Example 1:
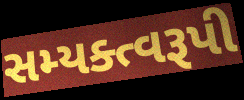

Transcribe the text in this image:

સમ્યક્ત્વરૂપી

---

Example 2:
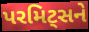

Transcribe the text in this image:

પરમિટ્સને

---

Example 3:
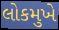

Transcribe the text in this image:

લોકમુખે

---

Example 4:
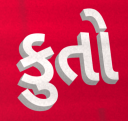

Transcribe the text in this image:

કુતો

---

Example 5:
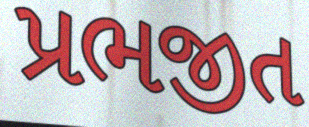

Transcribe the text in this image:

પ્રભજીત